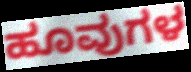
ಹೂವುಗಳ